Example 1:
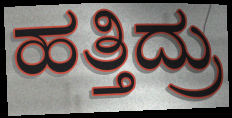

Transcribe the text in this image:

ಹತ್ತಿದ್ರು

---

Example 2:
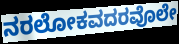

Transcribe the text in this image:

ನರಲೋಕವದರವೊಲೇ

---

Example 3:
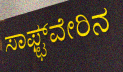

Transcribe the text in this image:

ಸಾಫ್ಟ್‌ವೇರಿನ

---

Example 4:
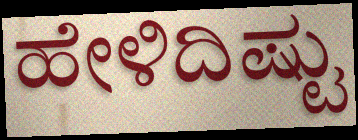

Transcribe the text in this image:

ಹೇಳಿದಿಷ್ಟು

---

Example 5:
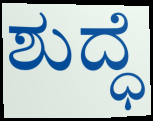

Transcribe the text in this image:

ಶುದ್ಧೆ